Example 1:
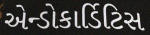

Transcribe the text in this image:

એન્ડોકાર્ડિટિસ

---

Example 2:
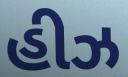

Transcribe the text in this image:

હીઝ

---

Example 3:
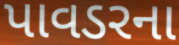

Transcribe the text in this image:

પાવડરના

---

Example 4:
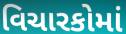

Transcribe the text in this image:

વિચારકોમાં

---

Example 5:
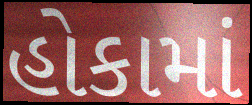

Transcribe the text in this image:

હોકામાં